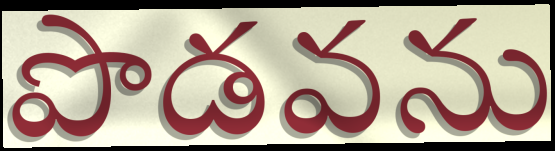
పొడవను